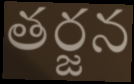
తర్జన